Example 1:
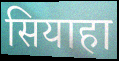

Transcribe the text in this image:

सियाहा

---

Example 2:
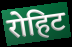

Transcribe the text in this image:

रोहिट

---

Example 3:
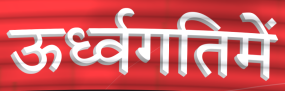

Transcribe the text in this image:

ऊर्ध्वगतिमें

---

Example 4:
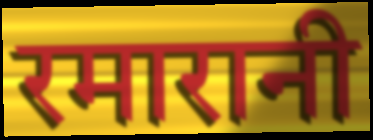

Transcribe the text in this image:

रमारानी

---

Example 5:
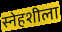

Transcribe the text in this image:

स्नेहशीला